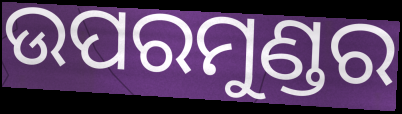
ଉପରମୁଣ୍ଡର